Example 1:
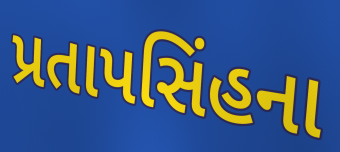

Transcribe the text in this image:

પ્રતાપસિંહના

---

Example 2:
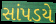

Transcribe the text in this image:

સાંપડયે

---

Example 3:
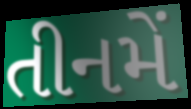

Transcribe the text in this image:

તીનમેં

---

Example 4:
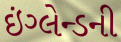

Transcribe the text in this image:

ઇંગ્લેન્ડની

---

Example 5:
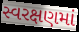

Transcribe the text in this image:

સ્વરક્ષણમાં